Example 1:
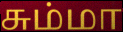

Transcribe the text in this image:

சும்மா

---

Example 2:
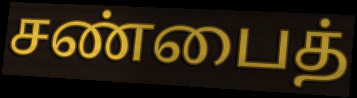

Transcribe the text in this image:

சண்பைத்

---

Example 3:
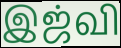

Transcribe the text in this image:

இஜ்வி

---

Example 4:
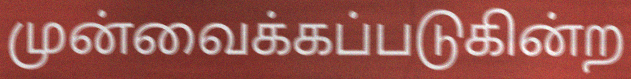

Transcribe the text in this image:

முன்வைக்கப்படுகின்ற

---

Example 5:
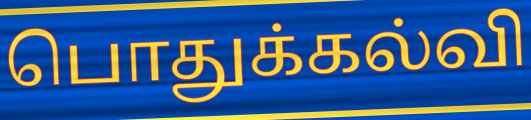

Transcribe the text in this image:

பொதுக்கல்வி